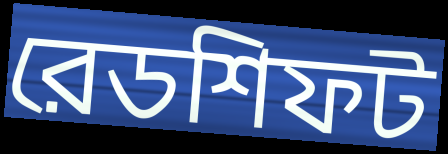
রেডশিফট